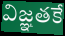
విజ్ఞతకే